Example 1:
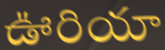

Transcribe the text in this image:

ఊరియా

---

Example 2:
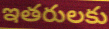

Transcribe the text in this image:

ఇతరులకు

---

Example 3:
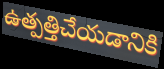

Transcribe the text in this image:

ఉత్పత్తిచేయడానికి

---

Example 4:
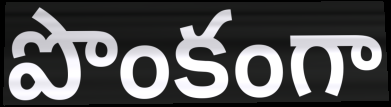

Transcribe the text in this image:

పొంకంగా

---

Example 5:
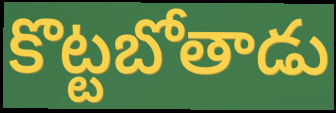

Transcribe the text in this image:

కొట్టబోతాడు